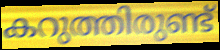
കറുത്തിരുണ്ട്